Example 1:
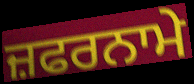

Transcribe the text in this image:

ਜ਼ਫਰਨਾਮੇ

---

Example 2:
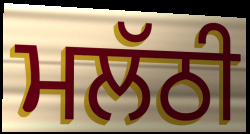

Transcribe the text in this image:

ਮਲੱਠੀ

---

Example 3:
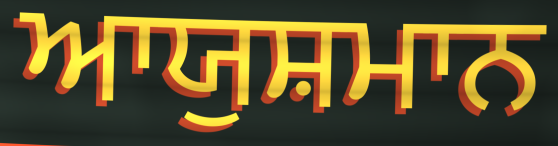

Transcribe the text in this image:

ਆਯੁਸ਼ਮਾਨ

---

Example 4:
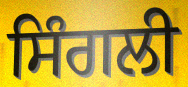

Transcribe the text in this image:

ਸਿੰਗਲੀ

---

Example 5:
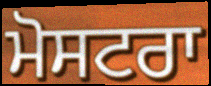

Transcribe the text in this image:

ਮੋਸਟਰਾ